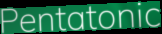
Pentatonic